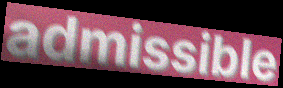
admissible